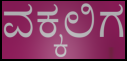
ವಕ್ಕಲಿಗ